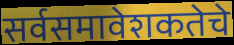
सर्वसमावेशकतेचे